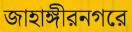
জাহাঙ্গীরনগরে